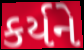
કર્યને